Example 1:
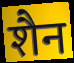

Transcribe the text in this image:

शैन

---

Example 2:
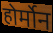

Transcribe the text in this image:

होर्मोन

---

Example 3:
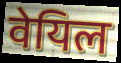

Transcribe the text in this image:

वेयिल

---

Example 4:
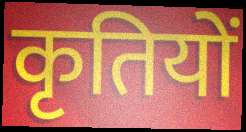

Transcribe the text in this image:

कृतियों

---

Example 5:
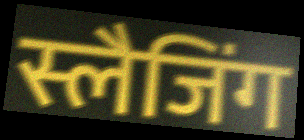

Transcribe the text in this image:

स्लैजिंग